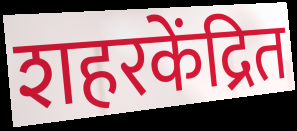
शहरकेंद्रित